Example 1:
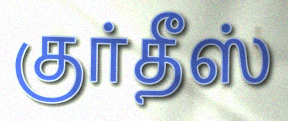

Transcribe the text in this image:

குர்தீஸ்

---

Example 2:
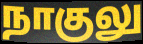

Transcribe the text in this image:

நாகுலு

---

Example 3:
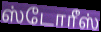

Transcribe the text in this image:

ஸ்டோரீஸ்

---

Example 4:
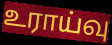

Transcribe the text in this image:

உராய்வு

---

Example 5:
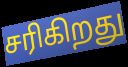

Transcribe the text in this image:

சரிகிறது